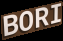
BORI